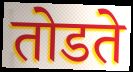
तोडते